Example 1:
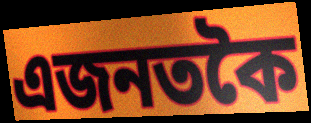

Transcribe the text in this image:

এজনতকৈ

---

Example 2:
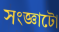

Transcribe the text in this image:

সংজ্ঞাটো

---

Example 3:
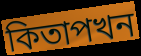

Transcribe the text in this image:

কিতাপখন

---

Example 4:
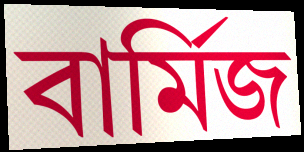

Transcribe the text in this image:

বাৰ্মিজ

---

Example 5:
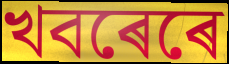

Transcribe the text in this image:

খবৰেৰে